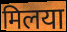
मिलया